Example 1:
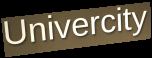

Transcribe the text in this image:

Univercity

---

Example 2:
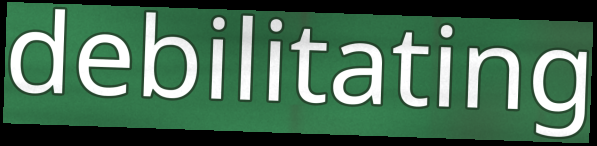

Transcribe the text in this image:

debilitating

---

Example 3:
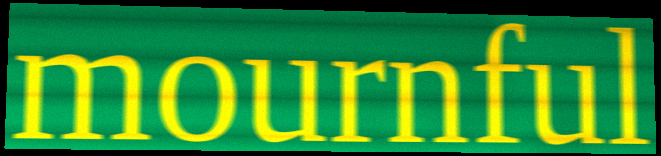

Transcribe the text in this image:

mournful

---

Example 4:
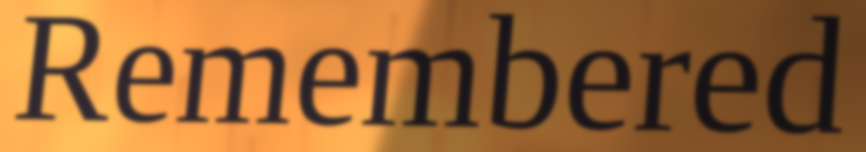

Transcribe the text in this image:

Remembered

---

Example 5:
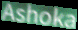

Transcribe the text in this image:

Ashoka